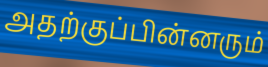
அதற்குப்பின்னரும்